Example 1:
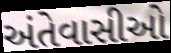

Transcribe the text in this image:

અંતેવાસીઓ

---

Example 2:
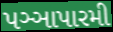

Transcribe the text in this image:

પઞ્ઞાપારમી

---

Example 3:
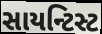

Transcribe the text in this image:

સાયન્ટિસ્ટ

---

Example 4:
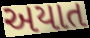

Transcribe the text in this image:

અયાત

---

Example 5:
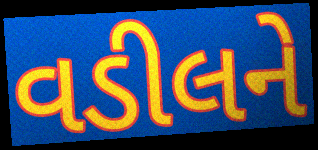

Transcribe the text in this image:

વડીલને